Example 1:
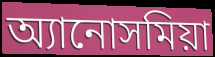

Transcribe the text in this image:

অ্যানোসমিয়া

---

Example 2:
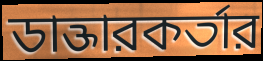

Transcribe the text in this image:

ডাক্তারকর্তার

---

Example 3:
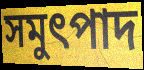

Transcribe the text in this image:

সমুৎপাদ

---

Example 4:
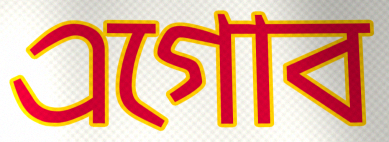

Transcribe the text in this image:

এগোব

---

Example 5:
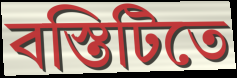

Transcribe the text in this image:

বস্তিটিতে